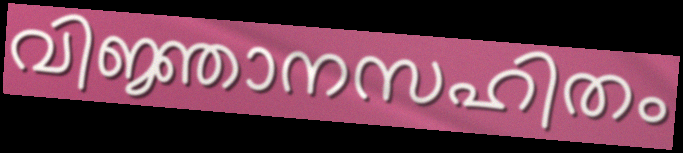
വിജ്ഞാനസഹിതം